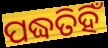
ପଦ୍ଧତିହିଁ